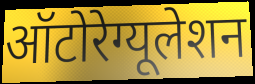
ऑटोरेग्यूलेशन